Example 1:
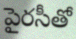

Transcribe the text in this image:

పైరసీతో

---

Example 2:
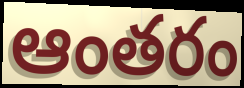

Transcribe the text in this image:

ఆంతరం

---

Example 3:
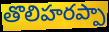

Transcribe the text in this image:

తొలిహరప్పా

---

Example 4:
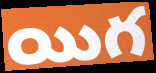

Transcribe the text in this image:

యిగ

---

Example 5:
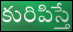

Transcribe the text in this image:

కురిపిస్తే